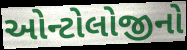
ઓન્ટોલોજીનો